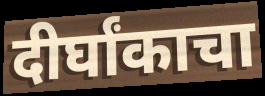
दीर्घांकाचा